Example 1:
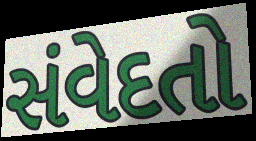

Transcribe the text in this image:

સંવેદતો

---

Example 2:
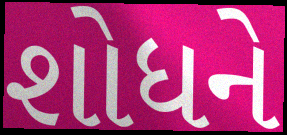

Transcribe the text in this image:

શોધને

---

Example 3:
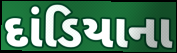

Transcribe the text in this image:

દાંડિયાના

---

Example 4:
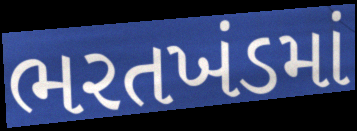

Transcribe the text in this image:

ભરતખંડમાં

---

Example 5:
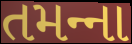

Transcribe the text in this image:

તમન્‍ના